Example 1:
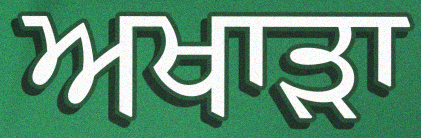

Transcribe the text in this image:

ਅਖਾੜਾ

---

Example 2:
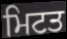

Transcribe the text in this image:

ਮਿਟਤ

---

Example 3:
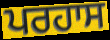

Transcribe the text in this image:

ਪਰਹਾਸ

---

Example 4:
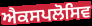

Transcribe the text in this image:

ਐਕਸਪਲੋਸਿਵ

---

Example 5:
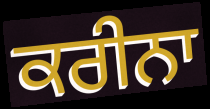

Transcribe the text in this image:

ਕਰੀਨਾ